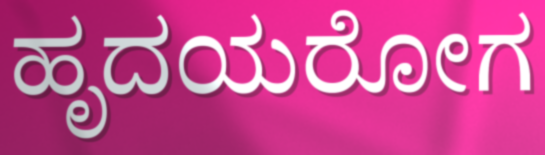
ಹೃದಯರೋಗ